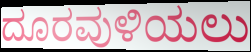
ದೂರವುಳಿಯಲು